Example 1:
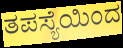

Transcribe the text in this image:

ತಪಸ್ಯೆಯಿಂದ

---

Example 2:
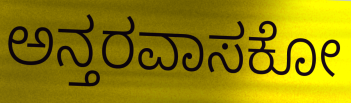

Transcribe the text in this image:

ಅನ್ತರವಾಸಕೋ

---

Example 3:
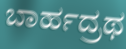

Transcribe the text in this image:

ಬಾರ್ಹದ್ರಥ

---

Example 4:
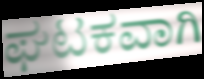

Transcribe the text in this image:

ಘಟಕವಾಗಿ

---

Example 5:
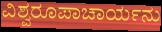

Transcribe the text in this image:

ವಿಶ್ವರೂಪಾಚಾರ್ಯನು